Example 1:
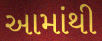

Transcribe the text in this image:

આમાંથી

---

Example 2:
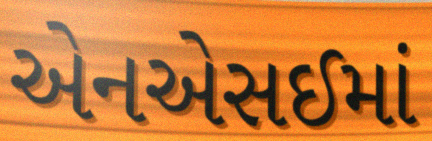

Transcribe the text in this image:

એનએસઈમાં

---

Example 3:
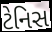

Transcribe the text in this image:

ટેનિસ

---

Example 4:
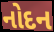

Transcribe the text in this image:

નોદન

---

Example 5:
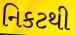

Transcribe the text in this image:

નિકટથી